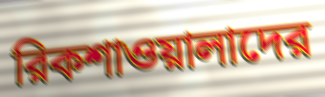
রিকশাওয়ালাদের